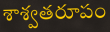
శాశ్వతరూపం